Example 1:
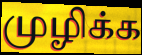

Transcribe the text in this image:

முழிக்க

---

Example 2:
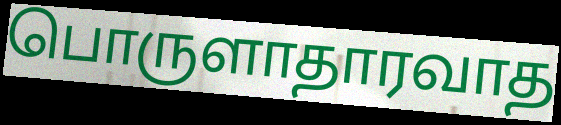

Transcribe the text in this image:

பொருளாதாரவாத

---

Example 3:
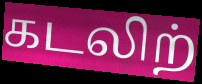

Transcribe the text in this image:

கடலிற்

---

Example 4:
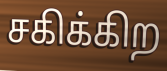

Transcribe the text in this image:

சகிக்கிற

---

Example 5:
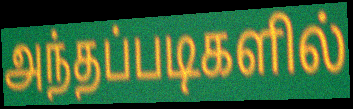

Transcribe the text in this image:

அந்தப்படிகளில்